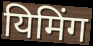
यिमिंग